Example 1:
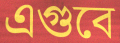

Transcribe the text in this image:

এগুবে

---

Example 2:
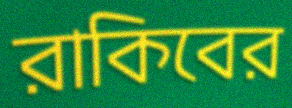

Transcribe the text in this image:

রাকিবের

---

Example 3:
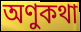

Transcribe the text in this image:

অণুকথা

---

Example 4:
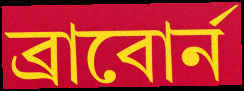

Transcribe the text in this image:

ব্রাবোর্ন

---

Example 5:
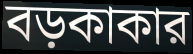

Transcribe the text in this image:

বড়কাকার